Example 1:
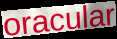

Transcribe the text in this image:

oracular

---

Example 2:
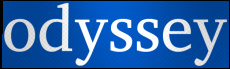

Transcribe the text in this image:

odyssey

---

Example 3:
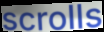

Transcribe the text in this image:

scrolls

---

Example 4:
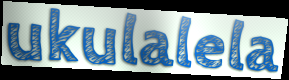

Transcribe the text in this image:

ukulalela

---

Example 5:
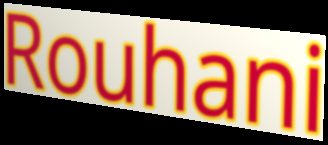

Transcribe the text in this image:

Rouhani